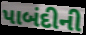
પાબંદીની